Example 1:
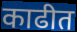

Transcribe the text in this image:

काढीत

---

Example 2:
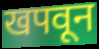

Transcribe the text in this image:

खपवून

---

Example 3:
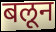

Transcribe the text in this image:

बलून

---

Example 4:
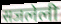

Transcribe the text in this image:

सजलेली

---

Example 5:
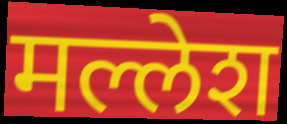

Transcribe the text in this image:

मल्लेश